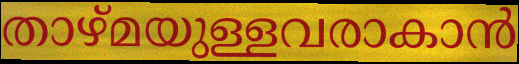
താഴ്മയുള്ളവരാകാൻ